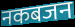
नकबजन